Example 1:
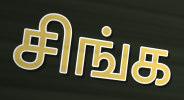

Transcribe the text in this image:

சிங்க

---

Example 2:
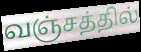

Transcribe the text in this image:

வஞ்சத்தில்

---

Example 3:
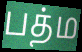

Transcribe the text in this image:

பத்ம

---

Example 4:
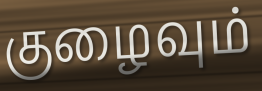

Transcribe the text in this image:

குழைவும்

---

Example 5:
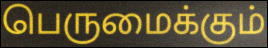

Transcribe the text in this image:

பெருமைக்கும்